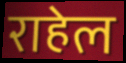
राहेल